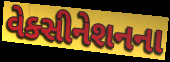
વેક્સીનેશનના